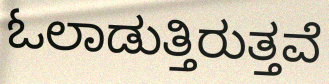
ಓಲಾಡುತ್ತಿರುತ್ತವೆ